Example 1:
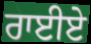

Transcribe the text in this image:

ਰਾਈਏ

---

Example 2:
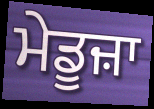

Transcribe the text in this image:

ਮੇਡੂਜ਼ਾ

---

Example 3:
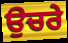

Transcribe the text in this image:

ਉਚਰੇ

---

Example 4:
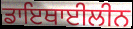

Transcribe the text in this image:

ਡਾਇਥਾਈਲੀਨ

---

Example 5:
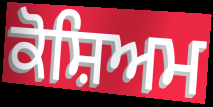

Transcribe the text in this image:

ਕੋਸ਼ਿਅਮ